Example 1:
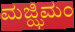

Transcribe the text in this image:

ಮಜ್ಝಿಮಂ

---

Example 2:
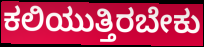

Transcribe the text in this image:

ಕಲಿಯುತ್ತಿರಬೇಕು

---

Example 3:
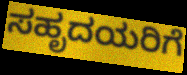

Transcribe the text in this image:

ಸಹೃದಯರಿಗೆ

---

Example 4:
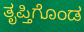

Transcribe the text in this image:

ತೃಪ್ತಿಗೊಂಡ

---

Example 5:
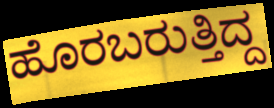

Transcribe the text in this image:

ಹೊರಬರುತ್ತಿದ್ದ